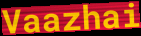
Vaazhai